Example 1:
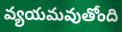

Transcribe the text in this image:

వ్యయమవుతోంది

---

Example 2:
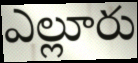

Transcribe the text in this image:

ఎల్లూరు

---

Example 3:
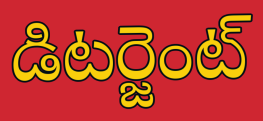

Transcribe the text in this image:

డిటర్జెంట్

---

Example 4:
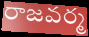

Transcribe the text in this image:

రాజవర్మ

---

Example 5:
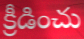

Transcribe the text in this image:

క్రీడించు